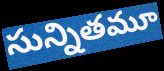
సున్నితమూ